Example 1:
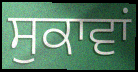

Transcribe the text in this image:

ਸੁਕਾਵਾਂ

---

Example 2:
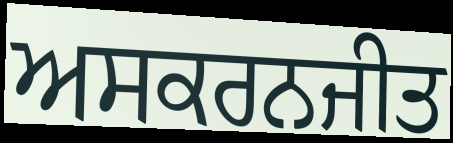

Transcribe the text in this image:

ਅਸਕਰਨਜੀਤ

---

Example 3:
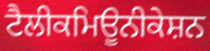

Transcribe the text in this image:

ਟੈਲੀਕਮਿਊਨੀਕੇਸ਼ਨ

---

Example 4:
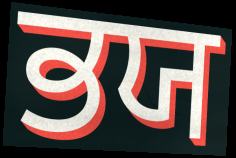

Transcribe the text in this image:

ਭਯ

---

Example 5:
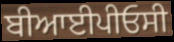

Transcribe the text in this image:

ਬੀਆਈਪੀਓਸੀ